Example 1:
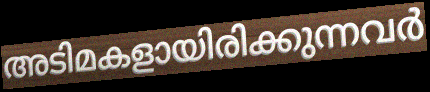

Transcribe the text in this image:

അടിമകളായിരിക്കുന്നവർ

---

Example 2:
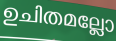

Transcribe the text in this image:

ഉചിതമല്ലോ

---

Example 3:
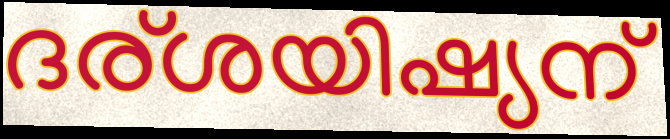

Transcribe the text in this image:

ദര്ശയിഷ്യന്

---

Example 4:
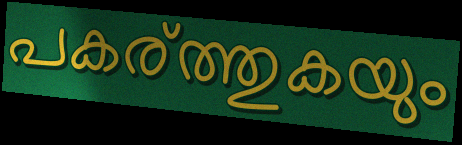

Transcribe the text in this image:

പകര്ത്തുകയും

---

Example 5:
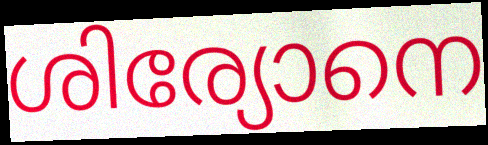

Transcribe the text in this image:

ശിര്യോനെ